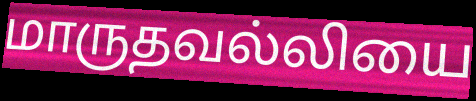
மாருதவல்லியை